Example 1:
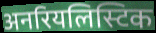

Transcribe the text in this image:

अनरियलिस्टिक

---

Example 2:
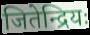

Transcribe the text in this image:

जितेन्द्रियः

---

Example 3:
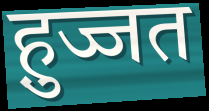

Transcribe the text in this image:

ह़ुज्जत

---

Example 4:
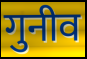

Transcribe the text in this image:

गुनीव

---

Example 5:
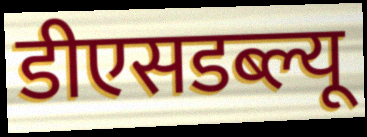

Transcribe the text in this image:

डीएसडब्ल्यू